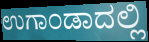
ಉಗಾಂಡಾದಲ್ಲಿ